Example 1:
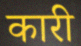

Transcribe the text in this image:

कारी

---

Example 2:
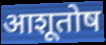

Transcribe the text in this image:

आशूतोष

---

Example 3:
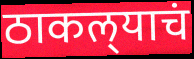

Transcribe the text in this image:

ठाकल्याचं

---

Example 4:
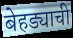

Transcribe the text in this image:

बेहड्याची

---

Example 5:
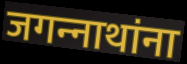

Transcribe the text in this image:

जगन्नाथांना